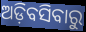
ଅଡ଼ିବସିବାରୁ